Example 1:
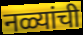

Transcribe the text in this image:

नळ्यांची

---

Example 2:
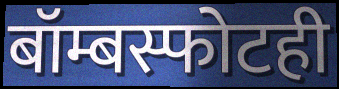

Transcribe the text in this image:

बॉम्बस्फोटही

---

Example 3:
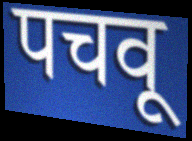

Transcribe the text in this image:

पचवू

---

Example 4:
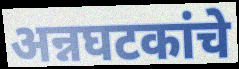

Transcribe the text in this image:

अन्नघटकांचे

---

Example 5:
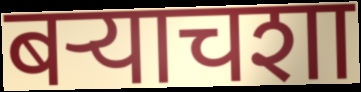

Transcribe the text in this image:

बऱ्याचशा